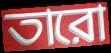
তারো